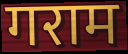
गराम